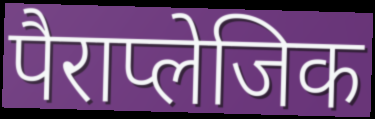
पैराप्लेजिक